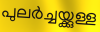
പുലർച്ചയ്ക്കുള്ള